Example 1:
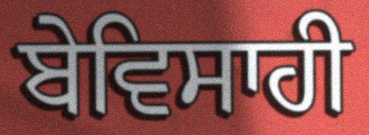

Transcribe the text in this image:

ਬੇਵਿਸਾਹੀ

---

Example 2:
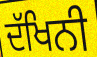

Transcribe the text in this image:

ਦੱਖਿਨੀ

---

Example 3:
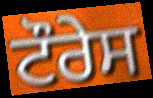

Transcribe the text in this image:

ਟੌਰੇਸ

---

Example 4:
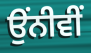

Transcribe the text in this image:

ਉੰਨੀਵੀਂ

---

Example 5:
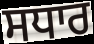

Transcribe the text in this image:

ਸਧਾਰ